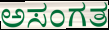
ಅಸಂಗತ